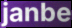
janbe